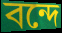
বন্দে